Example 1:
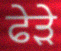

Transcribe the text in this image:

ਫੇੜੇ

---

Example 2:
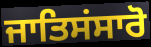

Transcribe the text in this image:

ਜਾਤਿਸਂਸਾਰੋ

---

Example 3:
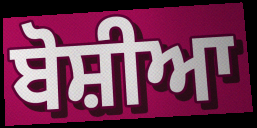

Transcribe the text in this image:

ਬੋਸ਼ੀਆ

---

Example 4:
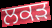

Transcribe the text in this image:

ਲਕੜ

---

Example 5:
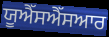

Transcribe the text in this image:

ਯੂਐੱਸਐੱਸਆਰ